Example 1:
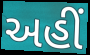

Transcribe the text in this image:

અહીં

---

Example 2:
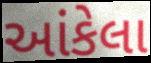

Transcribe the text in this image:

આંકેલા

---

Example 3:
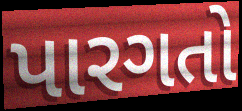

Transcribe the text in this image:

પારગતો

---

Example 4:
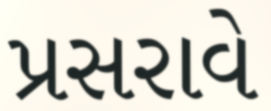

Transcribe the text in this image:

પ્રસરાવે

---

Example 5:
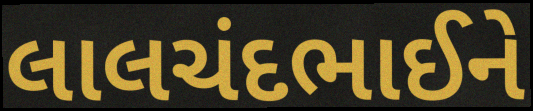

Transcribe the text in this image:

લાલચંદભાઈને